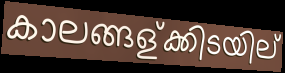
കാലങ്ങള്ക്കിടയില്